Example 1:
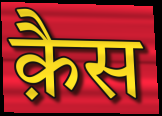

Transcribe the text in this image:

क़ैस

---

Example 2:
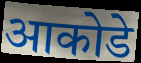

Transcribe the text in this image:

आकोडे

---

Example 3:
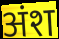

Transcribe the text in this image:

अंश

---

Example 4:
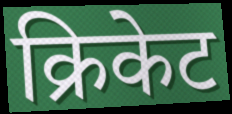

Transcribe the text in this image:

क्रिकेट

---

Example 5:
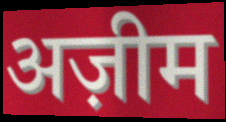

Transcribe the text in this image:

अज़ीम